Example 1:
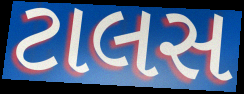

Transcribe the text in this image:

ટાલસ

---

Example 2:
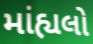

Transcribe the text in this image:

માંહ્યલો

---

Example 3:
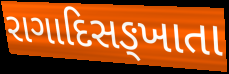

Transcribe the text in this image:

રાગાદિસઙ્ખાતા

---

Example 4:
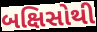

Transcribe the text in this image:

બક્ષિસોથી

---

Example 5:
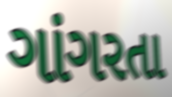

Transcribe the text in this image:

ગાંગરતા